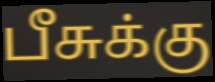
பீசுக்கு